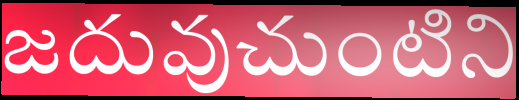
జదువుచుంటిని